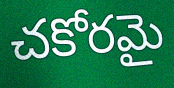
చకోరమై